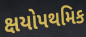
ક્ષયોપથમિક